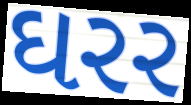
ઘરર